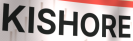
KISHORE